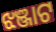
ଝଞ୍ଜାଟ